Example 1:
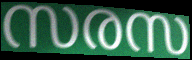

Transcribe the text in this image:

സരസ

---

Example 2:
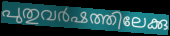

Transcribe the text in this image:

പുതുവർഷത്തിലേക്കു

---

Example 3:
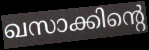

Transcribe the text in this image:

ഖസാക്കിന്റെ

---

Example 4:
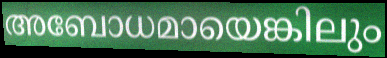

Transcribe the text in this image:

അബോധമായെങ്കിലും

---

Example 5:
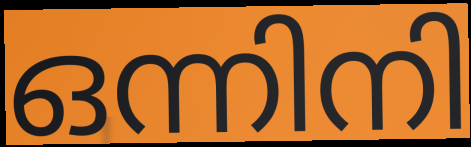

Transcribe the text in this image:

ഒന്നിനി